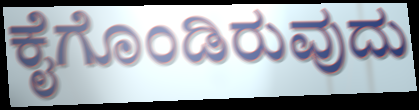
ಕೈಗೊಂಡಿರುವುದು